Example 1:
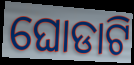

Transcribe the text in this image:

ଘୋଡାଟି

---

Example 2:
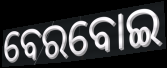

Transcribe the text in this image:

ବେରବୋଇ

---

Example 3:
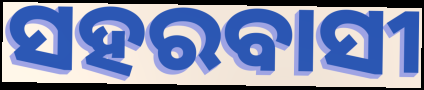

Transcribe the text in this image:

ସହରବାସୀ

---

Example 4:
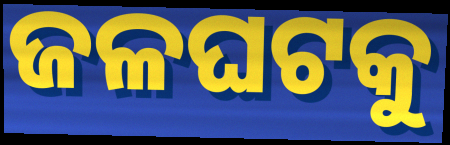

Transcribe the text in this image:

ଜଳଘଟକୁ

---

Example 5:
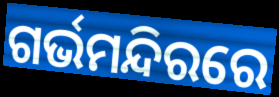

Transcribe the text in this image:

ଗର୍ଭମନ୍ଦିରରେ